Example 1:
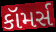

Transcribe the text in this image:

કૉમર્સ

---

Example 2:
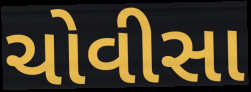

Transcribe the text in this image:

ચોવીસા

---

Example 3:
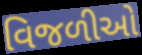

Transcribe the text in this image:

વિજળીઓ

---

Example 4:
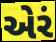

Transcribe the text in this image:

એરં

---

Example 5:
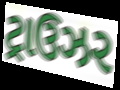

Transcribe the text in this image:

ટ્રાઉઝર